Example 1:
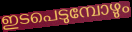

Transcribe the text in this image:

ഇടപെടുമ്പോഴും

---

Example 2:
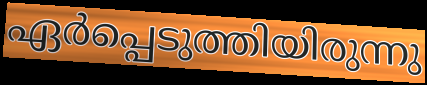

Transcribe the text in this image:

ഏർപ്പെടുത്തിയിരുന്നു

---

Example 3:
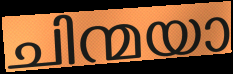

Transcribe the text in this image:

ചിന്മയാ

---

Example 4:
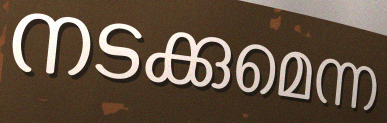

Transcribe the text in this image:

നടക്കുമെന്ന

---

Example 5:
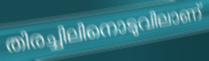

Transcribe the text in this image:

തിരച്ചിലിനൊടുവിലാണ്